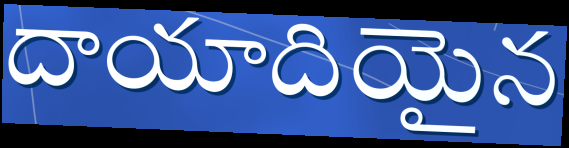
దాయాదియైన